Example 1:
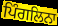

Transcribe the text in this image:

ਪਿੰਗਲਿਨਾ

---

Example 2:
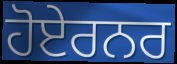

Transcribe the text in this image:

ਹੋਏਰਨਰ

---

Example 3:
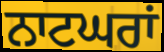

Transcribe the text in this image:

ਨਾਟਘਰਾਂ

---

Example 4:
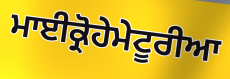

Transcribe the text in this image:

ਮਾਈਕ੍ਰੋਹੇਮੇਟੂਰੀਆ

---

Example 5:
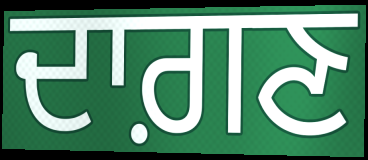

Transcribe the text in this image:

ਦਾਗ਼ਣ